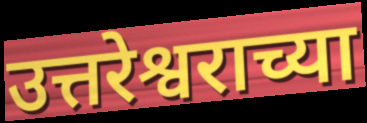
उत्तरेश्वराच्या